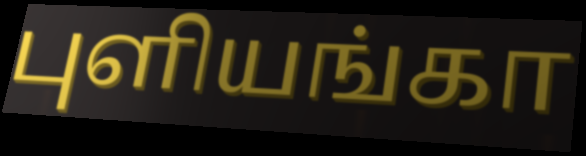
புளியங்கா